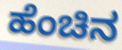
ಹೆಂಚಿನ